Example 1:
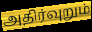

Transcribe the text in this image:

அதிர்வுறும்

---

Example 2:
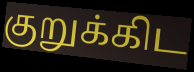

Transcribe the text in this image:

குறுக்கிட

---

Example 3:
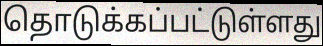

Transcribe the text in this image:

தொடுக்கப்பட்டுள்ளது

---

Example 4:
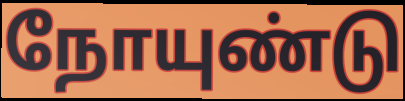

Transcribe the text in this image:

நோயுண்டு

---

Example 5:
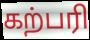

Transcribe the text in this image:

கற்பரி